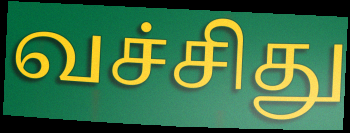
வச்சிது